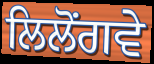
ਲਿਲੋਂਗਵੇ